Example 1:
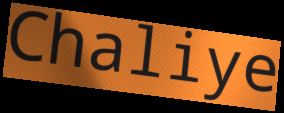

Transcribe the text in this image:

Chaliye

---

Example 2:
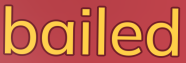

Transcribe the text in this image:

bailed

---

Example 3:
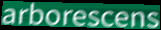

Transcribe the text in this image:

arborescens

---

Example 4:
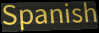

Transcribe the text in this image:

Spanish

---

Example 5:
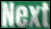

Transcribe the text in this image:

Next